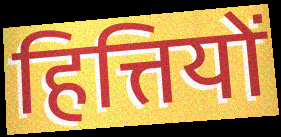
हित्तियों